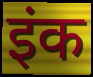
इंक